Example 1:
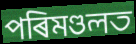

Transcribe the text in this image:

পৰিমণ্ডলত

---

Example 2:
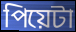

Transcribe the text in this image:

পিয়েটা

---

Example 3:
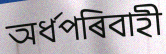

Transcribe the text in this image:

অৰ্ধপৰিবাহী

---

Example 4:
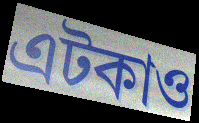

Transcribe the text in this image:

এটকাও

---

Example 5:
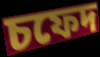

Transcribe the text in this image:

চফেদ